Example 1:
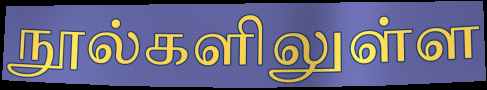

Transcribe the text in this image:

நூல்களிலுள்ள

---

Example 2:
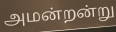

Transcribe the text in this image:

அமன்றன்று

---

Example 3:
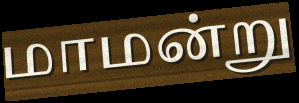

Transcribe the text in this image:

மாமன்று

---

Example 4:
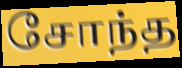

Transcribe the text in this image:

சோந்த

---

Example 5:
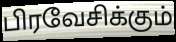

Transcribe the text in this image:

பிரவேசிக்கும்